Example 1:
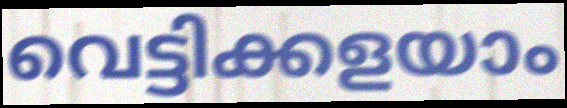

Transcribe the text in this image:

വെട്ടിക്കളയാം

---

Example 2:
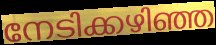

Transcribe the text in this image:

നേടിക്കഴിഞ്ഞ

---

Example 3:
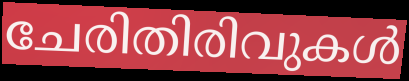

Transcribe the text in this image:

ചേരിതിരിവുകൾ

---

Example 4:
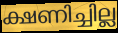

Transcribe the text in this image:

ക്ഷണിച്ചില്ല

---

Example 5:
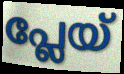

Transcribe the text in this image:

പ്ലേയ്